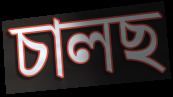
চালছ